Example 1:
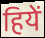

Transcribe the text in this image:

हियें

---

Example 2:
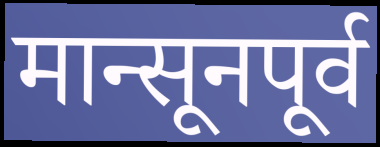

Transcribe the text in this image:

मान्सूनपूर्व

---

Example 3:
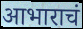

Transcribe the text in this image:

आभाराचं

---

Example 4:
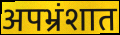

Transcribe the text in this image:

अपभ्रंशात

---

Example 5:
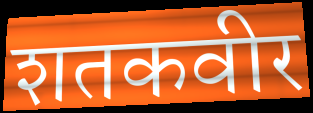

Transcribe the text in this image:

शतकवीर